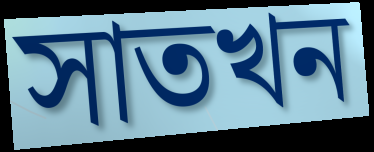
সাতখন